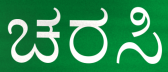
ಚರಸಿ